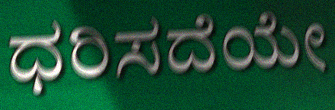
ಧರಿಸದೆಯೇ